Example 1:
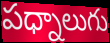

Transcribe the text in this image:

పధ్నాలుగు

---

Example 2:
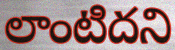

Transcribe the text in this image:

లాంటిదని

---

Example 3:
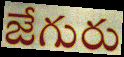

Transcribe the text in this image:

జేగురు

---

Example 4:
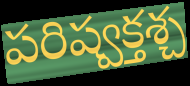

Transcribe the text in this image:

పరిష్వక్తశ్చ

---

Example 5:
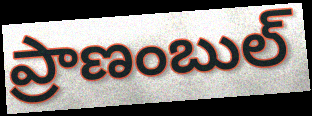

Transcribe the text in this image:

ప్రాణంబుల్